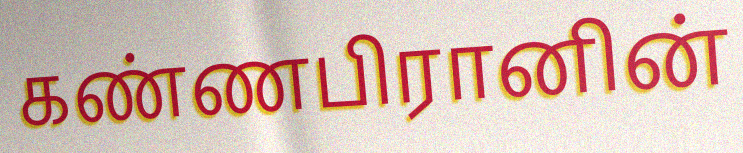
கண்ணபிரானின்